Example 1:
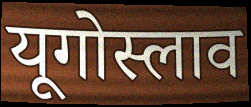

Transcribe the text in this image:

यूगोस्लाव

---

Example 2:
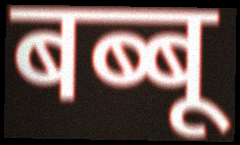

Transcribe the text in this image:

बब्बू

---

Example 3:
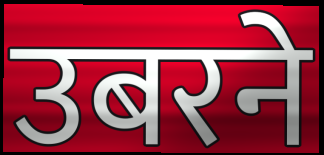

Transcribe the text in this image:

उबरने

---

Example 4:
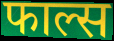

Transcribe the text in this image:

फाल्स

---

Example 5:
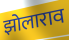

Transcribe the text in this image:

झोलाराव